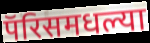
पॅरिसमधल्या